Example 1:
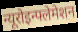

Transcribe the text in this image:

न्यूरोइन्फ्लेमेशन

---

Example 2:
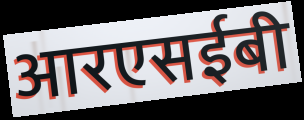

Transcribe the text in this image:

आरएसईबी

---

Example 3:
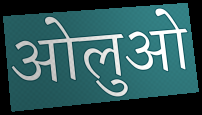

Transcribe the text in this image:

ओलुओ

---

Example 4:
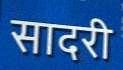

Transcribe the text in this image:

सादरी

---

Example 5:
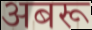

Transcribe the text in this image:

अबरू